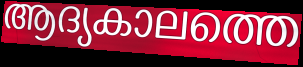
ആദ്യകാലത്തെ